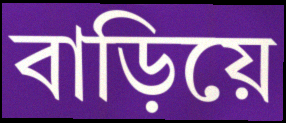
বাড়িয়ে